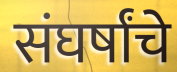
संघर्षांचे